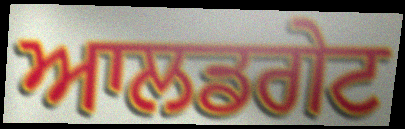
ਆਲਡਗੇਟ